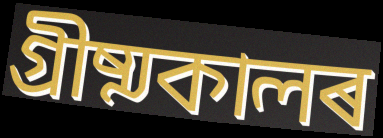
গ্ৰীষ্মকালৰ